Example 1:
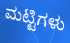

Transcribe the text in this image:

ಮಟ್ಟಿಗಳು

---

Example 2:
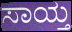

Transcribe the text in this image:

ಸಾಯ್ತ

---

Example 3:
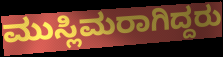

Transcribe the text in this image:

ಮುಸ್ಲಿಮರಾಗಿದ್ದರು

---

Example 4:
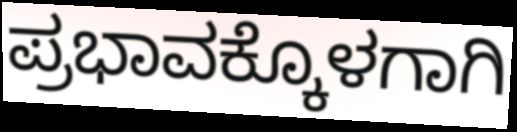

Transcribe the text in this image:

ಪ್ರಭಾವಕ್ಕೊಳಗಾಗಿ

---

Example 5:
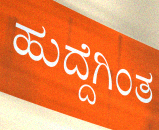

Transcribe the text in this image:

ಹುದ್ದೆಗಿಂತ